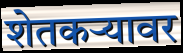
शेतकऱ्यावर